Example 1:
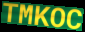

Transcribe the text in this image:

TMKOC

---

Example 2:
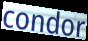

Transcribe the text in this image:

condor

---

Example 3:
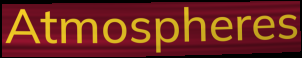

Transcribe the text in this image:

Atmospheres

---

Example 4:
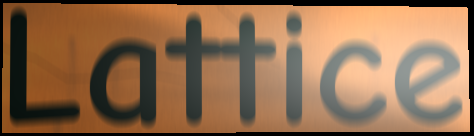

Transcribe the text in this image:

Lattice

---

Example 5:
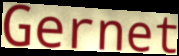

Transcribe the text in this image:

Gernet